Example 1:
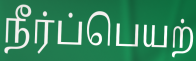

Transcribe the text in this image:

நீர்ப்பெயற்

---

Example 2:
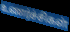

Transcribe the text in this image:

உணர்ச்சிகள்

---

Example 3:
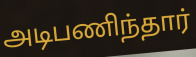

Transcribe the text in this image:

அடிபணிந்தார்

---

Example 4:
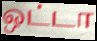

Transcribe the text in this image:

ஒட்டா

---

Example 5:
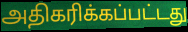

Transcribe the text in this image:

அதிகரிக்கப்பட்டது